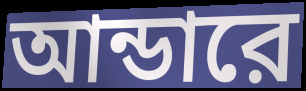
আন্ডারে